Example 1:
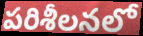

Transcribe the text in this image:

పరిశీలనలో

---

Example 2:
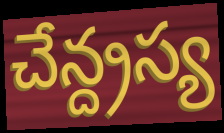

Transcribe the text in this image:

చేన్ద్రస్య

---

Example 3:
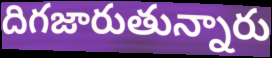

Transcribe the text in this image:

దిగజారుతున్నారు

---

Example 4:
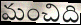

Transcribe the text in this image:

మంచిది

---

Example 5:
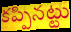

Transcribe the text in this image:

కప్పినట్టు